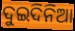
ଦୁଇଦିନିଆ